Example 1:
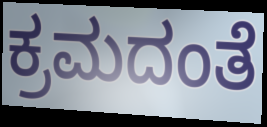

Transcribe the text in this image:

ಕ್ರಮದಂತೆ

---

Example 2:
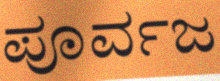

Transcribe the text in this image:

ಪೂರ್ವಜ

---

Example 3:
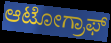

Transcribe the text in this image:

ಆಟೋಗ್ರಾಫ್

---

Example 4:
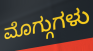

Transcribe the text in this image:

ಮೊಗ್ಗುಗಳು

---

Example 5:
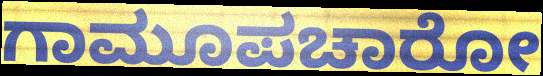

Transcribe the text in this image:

ಗಾಮೂಪಚಾರೋ